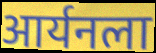
आर्यनला